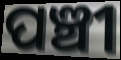
ପଞ୍ଚୀ